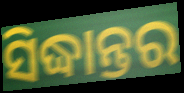
ସିଦ୍ଧାନ୍ତର